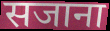
सजाना